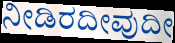
ನೀಡಿರದೀವುದೀ